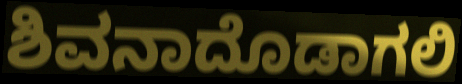
ಶಿವನಾದೊಡಾಗಲಿ